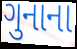
ગુનાના